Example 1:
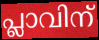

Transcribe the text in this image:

പ്ലാവിന്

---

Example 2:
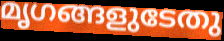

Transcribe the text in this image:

മൃഗങ്ങളുടേതു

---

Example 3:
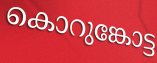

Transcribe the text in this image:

കൊറുങ്കോട്ട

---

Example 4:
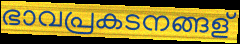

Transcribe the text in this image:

ഭാവപ്രകടനങ്ങള്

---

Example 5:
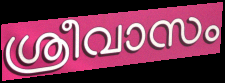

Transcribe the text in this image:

ശ്രീവാസം